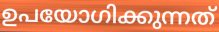
ഉപയോഗിക്കുന്നത്